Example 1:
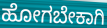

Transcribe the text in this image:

ಹೋಗಬೇಕಾಗಿ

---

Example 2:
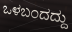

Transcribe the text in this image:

ಒಳಬಂದದ್ದು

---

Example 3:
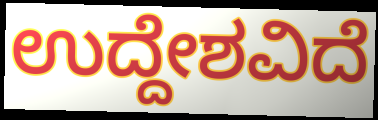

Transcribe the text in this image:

ಉದ್ದೇಶವಿದೆ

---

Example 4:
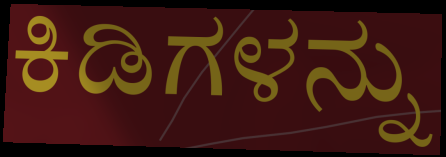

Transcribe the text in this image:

ಕಿಡಿಗಳನ್ನು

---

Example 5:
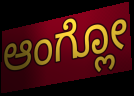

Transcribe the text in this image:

ಆಂಗ್ಲೋ